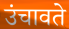
उंचावते